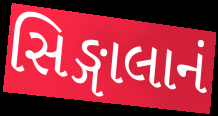
સિઙ્ગાલાનં